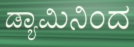
ಡ್ಯಾಮಿನಿಂದ